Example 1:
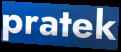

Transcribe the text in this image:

pratek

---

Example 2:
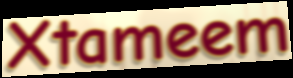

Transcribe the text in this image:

Xtameem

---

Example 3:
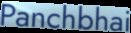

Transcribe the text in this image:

Panchbhai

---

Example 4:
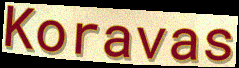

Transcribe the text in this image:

Koravas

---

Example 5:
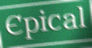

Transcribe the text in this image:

Epical